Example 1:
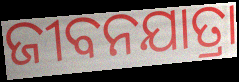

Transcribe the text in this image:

ଜୀବନଯାତ୍ରା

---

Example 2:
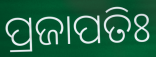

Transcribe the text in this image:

ପ୍ରଜାପତିଃ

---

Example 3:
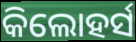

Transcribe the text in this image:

କିଲୋହର୍ସ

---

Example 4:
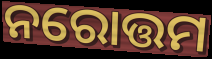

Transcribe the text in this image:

ନରୋତ୍ତମ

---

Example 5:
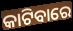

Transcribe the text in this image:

କାଟିବାରେ